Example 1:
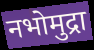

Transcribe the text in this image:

नभोमुद्रा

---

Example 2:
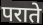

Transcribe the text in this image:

पराते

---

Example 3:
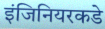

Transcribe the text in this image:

इंजिनियरकडे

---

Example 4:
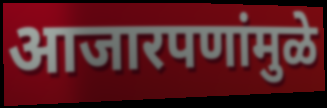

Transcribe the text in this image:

आजारपणांमुळे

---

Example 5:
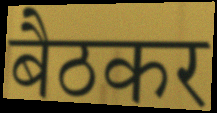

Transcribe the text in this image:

बैठकर